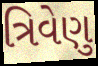
ત્રિવેણુ